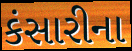
કંસારીના